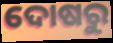
ଦୋଷରୁ